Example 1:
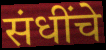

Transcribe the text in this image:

संधींचे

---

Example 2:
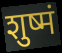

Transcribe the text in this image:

शुष्मं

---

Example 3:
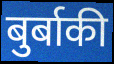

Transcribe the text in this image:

बुर्बाकी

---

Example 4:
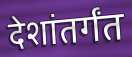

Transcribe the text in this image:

देशांतर्गंत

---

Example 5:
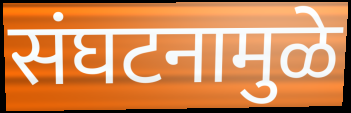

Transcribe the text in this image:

संघटनामुळे